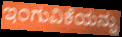
ಇಂಗುವಿಕೆಯನ್ನು